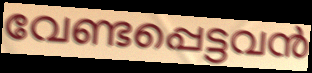
വേണ്ടപ്പെട്ടവൻ